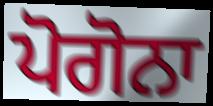
ਪੋਗੋਨਾ